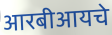
आरबीआयचे